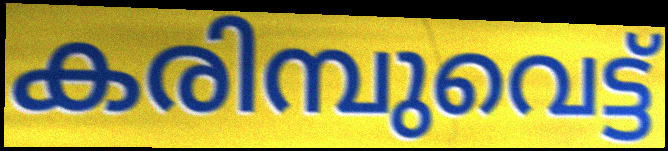
കരിമ്പുവെട്ട്